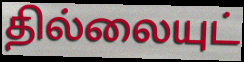
தில்லையுட்